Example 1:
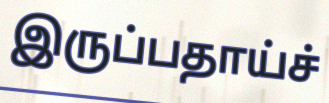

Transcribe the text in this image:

இருப்பதாய்ச்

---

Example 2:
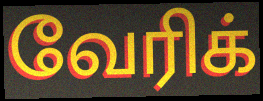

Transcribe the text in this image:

வேரிக்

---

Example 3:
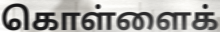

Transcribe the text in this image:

கொள்ளைக்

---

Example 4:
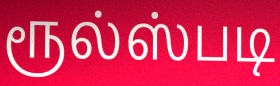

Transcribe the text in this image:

ரூல்ஸ்படி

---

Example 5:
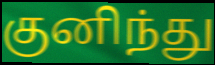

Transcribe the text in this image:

குனிந்து